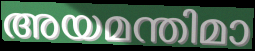
അയമന്തിമാ